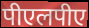
पीएलपीए